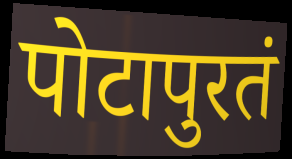
पोटापुरतं